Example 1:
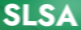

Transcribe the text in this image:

SLSA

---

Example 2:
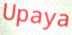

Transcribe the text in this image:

Upaya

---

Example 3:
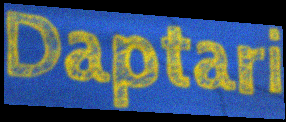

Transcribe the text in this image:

Daptari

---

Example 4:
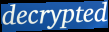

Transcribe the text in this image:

decrypted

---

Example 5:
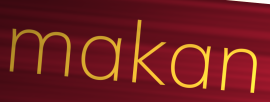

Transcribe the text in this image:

makan